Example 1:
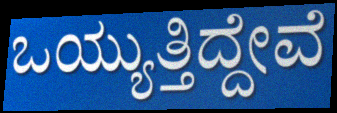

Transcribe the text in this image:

ಒಯ್ಯುತ್ತಿದ್ದೇವೆ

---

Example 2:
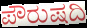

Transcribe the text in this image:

ಪೌರುಷದಿ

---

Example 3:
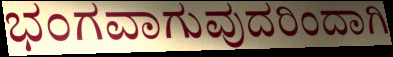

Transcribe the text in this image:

ಭಂಗವಾಗುವುದರಿಂದಾಗಿ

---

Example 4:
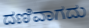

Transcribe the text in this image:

ದಣಿವಾಗದು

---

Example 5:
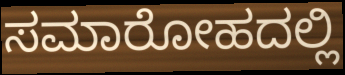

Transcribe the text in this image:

ಸಮಾರೋಹದಲ್ಲಿ